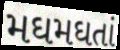
મઘમઘતાં